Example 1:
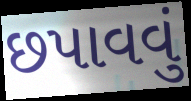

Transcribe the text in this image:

છપાવવું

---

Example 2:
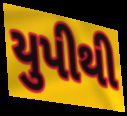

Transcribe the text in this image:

યુપીથી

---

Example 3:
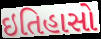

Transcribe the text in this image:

ઇતિહાસો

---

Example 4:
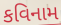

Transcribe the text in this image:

કવિનામ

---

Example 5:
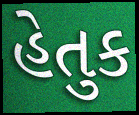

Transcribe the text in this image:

હેતુક